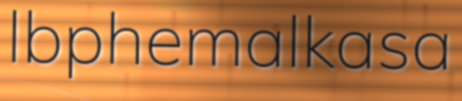
lbphemalkasa